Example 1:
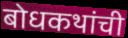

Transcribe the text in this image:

बोधकथांची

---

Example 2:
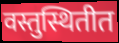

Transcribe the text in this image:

वस्तुस्थितीत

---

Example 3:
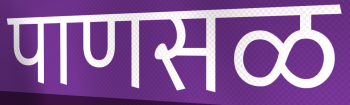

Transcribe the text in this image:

पाणसळ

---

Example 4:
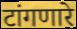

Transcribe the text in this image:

टांगणारे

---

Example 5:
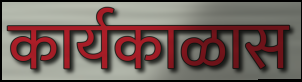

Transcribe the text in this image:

कार्यकाळास